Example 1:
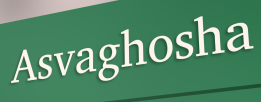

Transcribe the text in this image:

Asvaghosha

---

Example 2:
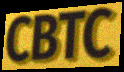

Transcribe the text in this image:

CBTC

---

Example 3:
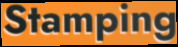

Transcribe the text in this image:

Stamping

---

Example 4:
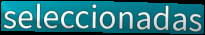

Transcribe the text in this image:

seleccionadas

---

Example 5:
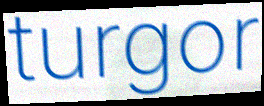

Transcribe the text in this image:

turgor